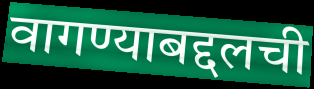
वागण्याबद्दलची